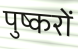
पुष्करों